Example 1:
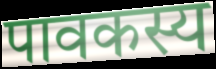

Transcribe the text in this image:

पावकस्य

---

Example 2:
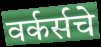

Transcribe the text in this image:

वर्कर्सचे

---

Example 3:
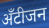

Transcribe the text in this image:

अँटीजन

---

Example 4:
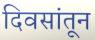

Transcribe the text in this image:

दिवसांतून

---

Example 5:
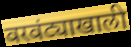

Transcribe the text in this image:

वरवंट्याखाली